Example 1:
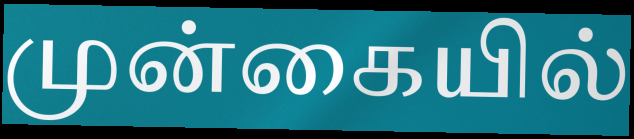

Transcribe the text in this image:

முன்கையில்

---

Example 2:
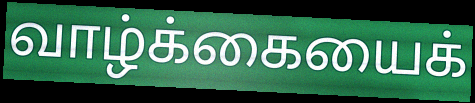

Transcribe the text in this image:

வாழ்க்கையைக்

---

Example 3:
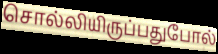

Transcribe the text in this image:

சொல்லியிருப்பதுபோல்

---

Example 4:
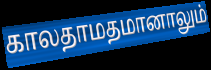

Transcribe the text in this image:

காலதாமதமானாலும்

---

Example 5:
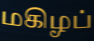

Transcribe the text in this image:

மகிழப்